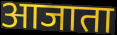
आजाता